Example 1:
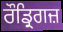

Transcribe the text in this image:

ਰੌਡ੍ਰਿਗਜ਼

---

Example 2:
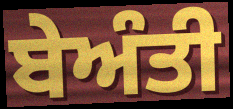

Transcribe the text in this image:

ਬੇਅੰਤੀ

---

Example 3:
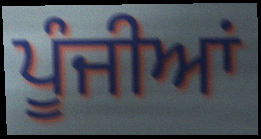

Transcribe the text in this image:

ਪੂੰਜੀਆਂ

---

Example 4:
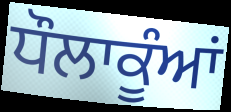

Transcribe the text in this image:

ਧੌਲਾਕੂੰਆਂ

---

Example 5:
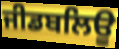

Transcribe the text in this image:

ਜੀਡਬਲਿਊ